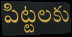
పిట్టలకు